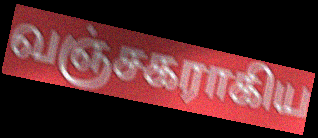
வஞ்சகராகிய